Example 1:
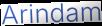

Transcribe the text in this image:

Arindam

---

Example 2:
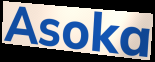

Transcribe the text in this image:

Asoka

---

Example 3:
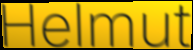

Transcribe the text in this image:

Helmut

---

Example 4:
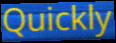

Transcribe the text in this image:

Quickly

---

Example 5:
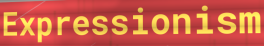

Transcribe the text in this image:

Expressionism